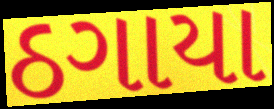
ઠગાયા